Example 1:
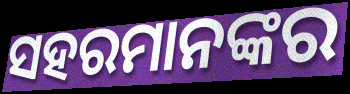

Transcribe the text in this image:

ସହରମାନଙ୍କର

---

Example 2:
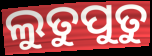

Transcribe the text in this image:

ଲୁତୁପୁତୁ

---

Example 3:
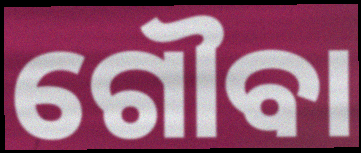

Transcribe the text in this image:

ଗୌବା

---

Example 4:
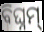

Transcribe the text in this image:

ବିଘ୍ନମ୍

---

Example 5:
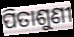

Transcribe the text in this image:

ପିତାଶୁଣୀ